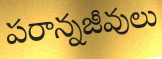
పరాన్నజీవులు